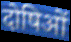
दोषिओं